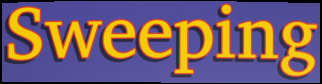
Sweeping